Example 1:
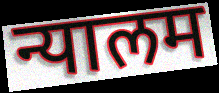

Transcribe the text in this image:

न्यालम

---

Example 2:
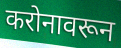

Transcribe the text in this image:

करोनावरून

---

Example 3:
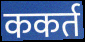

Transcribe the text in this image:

ककर्त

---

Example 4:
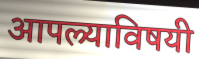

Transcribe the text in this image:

आपल्याविषयी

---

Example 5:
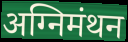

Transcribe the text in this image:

अग्निमंथन